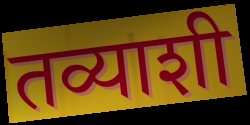
तव्याशी